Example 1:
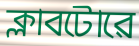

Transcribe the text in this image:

ক্লাবটোৱে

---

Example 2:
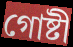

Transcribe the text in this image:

গোষ্টী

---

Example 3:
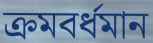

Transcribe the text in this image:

ক্ৰমবৰ্ধমান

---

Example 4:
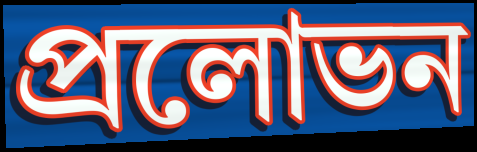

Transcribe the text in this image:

প্ৰলোভন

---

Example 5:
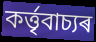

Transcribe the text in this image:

কৰ্ত্তৃবাচ্যৰ